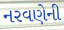
નરવણેની